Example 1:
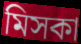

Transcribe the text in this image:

মিসকা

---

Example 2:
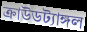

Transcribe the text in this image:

ক্রাউডট্যাঙ্গল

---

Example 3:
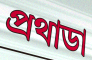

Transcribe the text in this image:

প্রথাডা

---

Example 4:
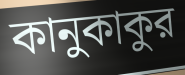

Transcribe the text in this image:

কানুকাকুর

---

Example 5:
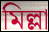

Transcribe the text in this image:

মিল্লা